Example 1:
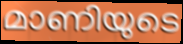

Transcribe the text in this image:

മാണിയുടെ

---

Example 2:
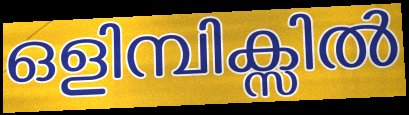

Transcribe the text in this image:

ഒളിമ്പിക്സിൽ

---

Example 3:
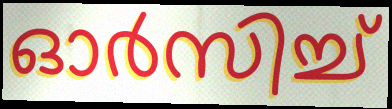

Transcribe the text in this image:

ഓർസിച്ച്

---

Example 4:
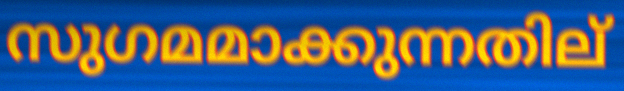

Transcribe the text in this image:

സുഗമമാക്കുന്നതില്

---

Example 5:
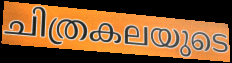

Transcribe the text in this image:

ചിത്രകലയുടെ